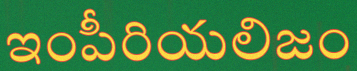
ఇంపీరియలిజం